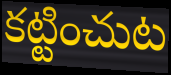
కట్టించుట